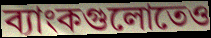
ব্যাংকগুলোতেও